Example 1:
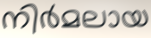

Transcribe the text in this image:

നിർമലായ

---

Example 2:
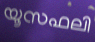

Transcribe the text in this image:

യൂസഫലി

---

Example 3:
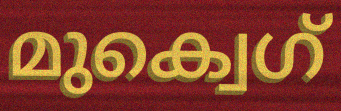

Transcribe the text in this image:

മുക്വെഗ്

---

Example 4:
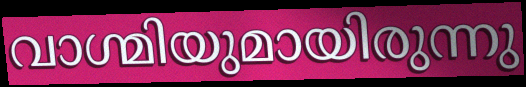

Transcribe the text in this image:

വാഗ്മിയുമായിരുന്നു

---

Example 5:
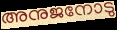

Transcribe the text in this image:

അനുജനോടു